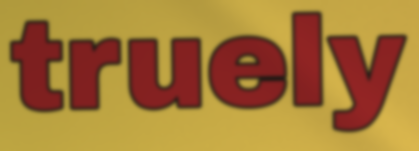
truely